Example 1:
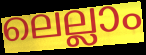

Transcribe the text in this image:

ലെല്ലാം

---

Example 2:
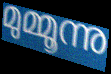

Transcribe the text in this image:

മുമ്മൂന്നു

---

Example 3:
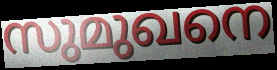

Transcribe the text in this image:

സുമുഖനെ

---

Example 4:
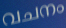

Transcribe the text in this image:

വചനം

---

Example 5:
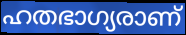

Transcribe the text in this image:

ഹതഭാഗ്യരാണ്